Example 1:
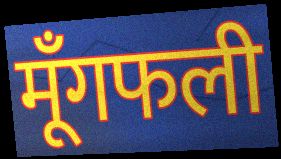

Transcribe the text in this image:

मूँगफली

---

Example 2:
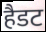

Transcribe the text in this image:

हैडट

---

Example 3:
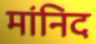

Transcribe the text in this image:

मांनिद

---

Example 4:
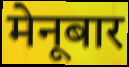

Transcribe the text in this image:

मेनूबार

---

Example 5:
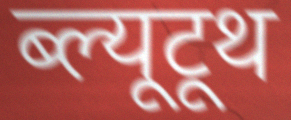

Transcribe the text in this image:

ब्ल्यूटूथ